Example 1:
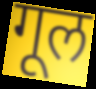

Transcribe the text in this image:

गूल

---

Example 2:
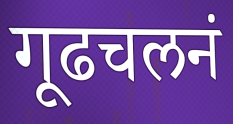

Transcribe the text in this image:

गूढचलनं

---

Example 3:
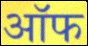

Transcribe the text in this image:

ऑफ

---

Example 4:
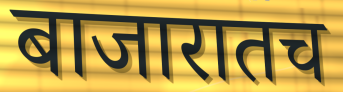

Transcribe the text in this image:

बाजारातच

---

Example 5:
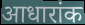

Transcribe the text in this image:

आधारांक